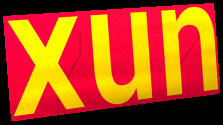
xun